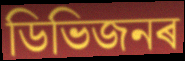
ডিভিজনৰ